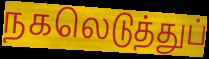
நகலெடுத்துப்